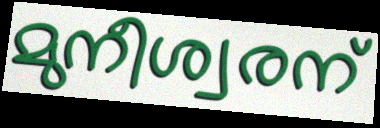
മുനീശ്വരന്